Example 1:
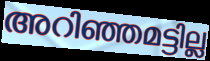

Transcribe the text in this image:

അറിഞ്ഞമട്ടില്ല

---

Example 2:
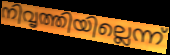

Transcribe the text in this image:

നിവൃത്തിയില്ലെന്ന്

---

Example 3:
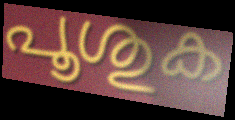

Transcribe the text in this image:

പൂശുക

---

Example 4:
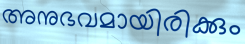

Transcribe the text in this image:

അനുഭവമായിരിക്കും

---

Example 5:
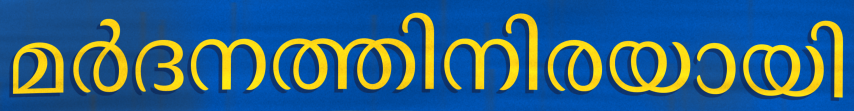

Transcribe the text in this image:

മർദനത്തിനിരയായി